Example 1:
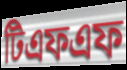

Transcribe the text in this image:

টিএফএফ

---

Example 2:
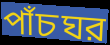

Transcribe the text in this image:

পাঁচঘর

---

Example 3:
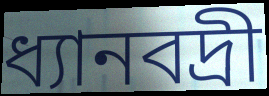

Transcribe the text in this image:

ধ্যানবদ্রী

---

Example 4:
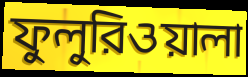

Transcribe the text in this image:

ফুলুরিওয়ালা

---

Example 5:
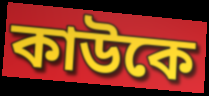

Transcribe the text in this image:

কাউকে